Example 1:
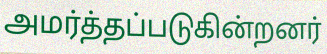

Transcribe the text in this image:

அமர்த்தப்படுகின்றனர்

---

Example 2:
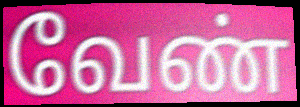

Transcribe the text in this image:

வேண்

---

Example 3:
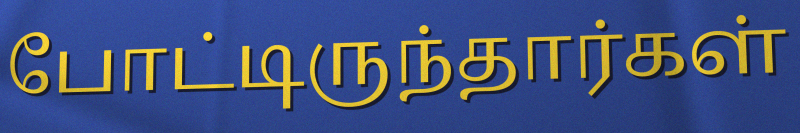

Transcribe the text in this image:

போட்டிருந்தார்கள்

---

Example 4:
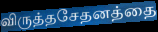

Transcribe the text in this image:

விருத்தசேதனத்தை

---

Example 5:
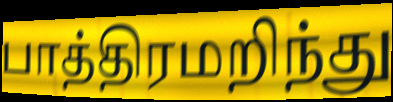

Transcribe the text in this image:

பாத்திரமறிந்து